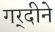
गर्दीने